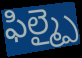
ఫిల్మ్పై